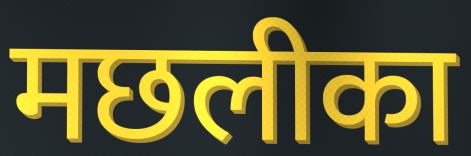
मछलीका